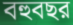
বহুবছর